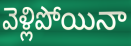
వెళ్లిపోయినా